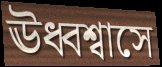
ঊধ্বশ্বাসে